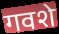
गवशे